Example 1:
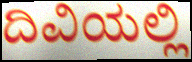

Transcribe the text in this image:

ದಿವಿಯಲ್ಲಿ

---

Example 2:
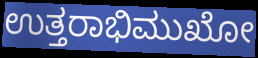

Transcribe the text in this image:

ಉತ್ತರಾಭಿಮುಖೋ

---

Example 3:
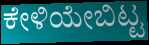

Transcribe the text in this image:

ಕೇಳಿಯೇಬಿಟ್ಟ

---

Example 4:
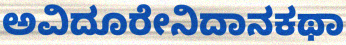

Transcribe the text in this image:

ಅವಿದೂರೇನಿದಾನಕಥಾ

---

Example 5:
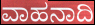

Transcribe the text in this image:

ವಾಹನಾದಿ